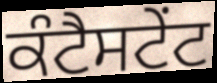
ਕੰਟੈਸਟੇਂਟ